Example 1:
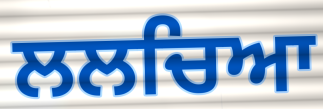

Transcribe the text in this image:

ਲਲਚਿਆ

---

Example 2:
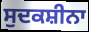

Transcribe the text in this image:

ਸੁਦਕਸ਼ੀਨਾ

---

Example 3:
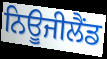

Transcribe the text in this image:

ਨਿਊਜੀਲੈਂਡ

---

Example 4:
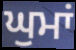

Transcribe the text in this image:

ਘੁਮਾਂ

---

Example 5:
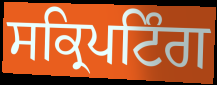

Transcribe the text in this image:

ਸਕ੍ਰਿਪਟਿੰਗ